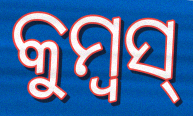
କୁମ୍ବସ୍